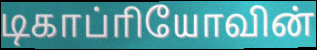
டிகாப்ரியோவின்